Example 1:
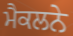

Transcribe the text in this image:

ਮੈਕਲਨੇ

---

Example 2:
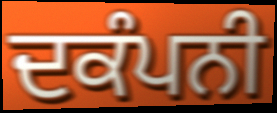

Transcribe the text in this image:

ਦਕੰਪਨੀ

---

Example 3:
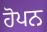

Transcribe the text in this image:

ਹੋਪਨ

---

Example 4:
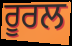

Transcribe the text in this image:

ਰੂਰਲ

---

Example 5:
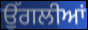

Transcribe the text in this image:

ਉੱਗਲੀਆਂ